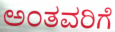
ಅಂತವರಿಗೆ